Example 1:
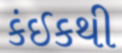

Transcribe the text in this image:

કંઈકથી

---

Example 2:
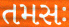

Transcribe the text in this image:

તમસઃ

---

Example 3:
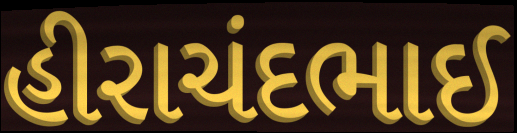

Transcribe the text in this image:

હીરાચંદભાઈ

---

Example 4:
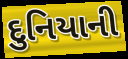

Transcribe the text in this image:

દુનિયાની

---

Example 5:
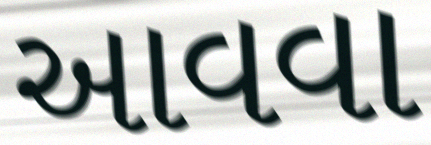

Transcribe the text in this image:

આવવા